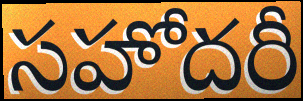
సహోదరీ